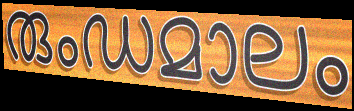
രുംഡമാലം